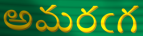
అమరఁగ